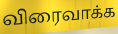
விரைவாக்க